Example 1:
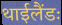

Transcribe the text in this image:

थाईलैंडः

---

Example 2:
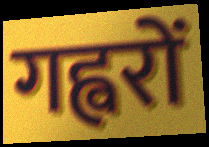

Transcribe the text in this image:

गह्वरों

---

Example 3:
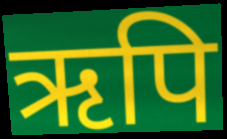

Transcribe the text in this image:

ऋपि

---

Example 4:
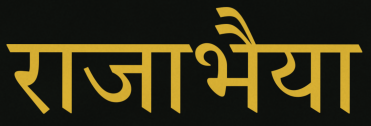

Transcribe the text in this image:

राजाभैया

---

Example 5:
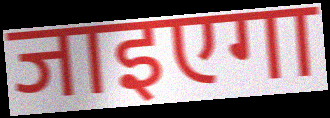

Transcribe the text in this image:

जाइएगा